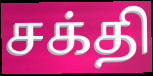
சக்தி